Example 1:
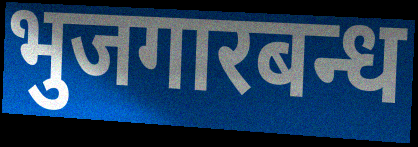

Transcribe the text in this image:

भुजगारबन्ध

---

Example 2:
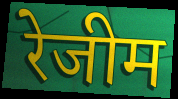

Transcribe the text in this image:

रेजीम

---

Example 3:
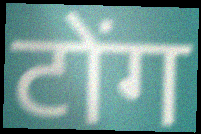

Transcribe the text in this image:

टोंग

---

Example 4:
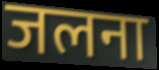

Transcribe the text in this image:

जलना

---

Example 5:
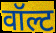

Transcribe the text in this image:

वॉल्ट